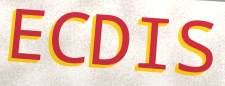
ECDIS